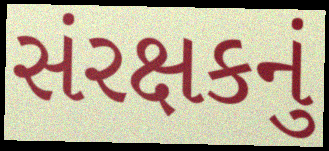
સંરક્ષકનું